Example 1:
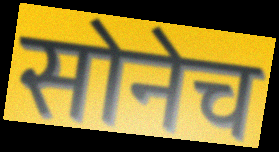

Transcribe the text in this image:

सोनेच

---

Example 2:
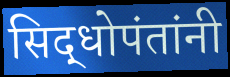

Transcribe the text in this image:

सिद्धोपंतांनी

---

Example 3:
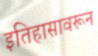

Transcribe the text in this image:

इतिहासावरून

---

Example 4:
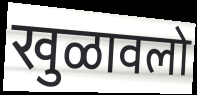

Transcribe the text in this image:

खुळावलो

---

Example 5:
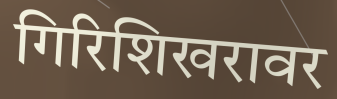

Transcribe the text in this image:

गिरिशिखरावर